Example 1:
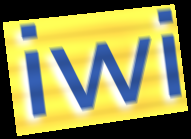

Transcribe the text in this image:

iwi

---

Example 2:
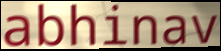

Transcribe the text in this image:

abhinav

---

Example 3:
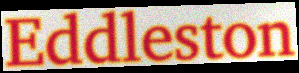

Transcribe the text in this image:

Eddleston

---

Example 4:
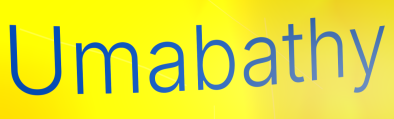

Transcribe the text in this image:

Umabathy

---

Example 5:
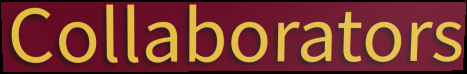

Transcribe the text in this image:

Collaborators